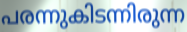
പരന്നുകിടന്നിരുന്ന